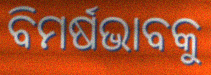
ବିମର୍ଷଭାବକୁ